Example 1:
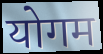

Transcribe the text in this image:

योगम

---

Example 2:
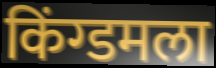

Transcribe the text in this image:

किंग्डमला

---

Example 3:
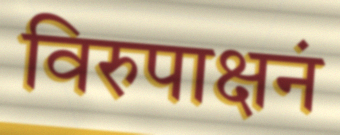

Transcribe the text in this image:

विरुपाक्षनं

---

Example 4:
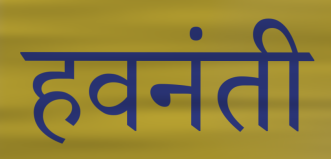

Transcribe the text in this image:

हवनंती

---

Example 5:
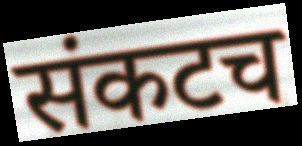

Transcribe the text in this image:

संकटच